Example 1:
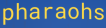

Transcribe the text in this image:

pharaohs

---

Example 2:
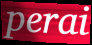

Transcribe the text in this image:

perai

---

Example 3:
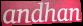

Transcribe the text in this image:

andhan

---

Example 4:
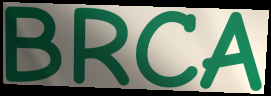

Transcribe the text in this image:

BRCA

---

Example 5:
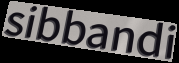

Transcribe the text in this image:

sibbandi